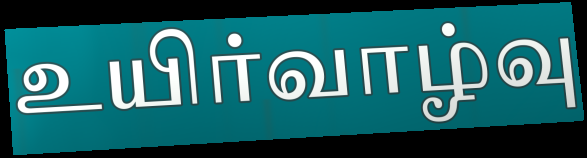
உயிர்வாழ்வு